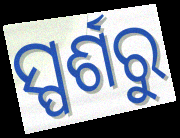
ସ୍ପର୍ଶରୁ